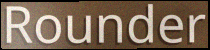
Rounder